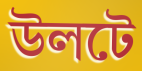
উলটে